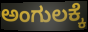
ಅಂಗುಲಕ್ಕೆ